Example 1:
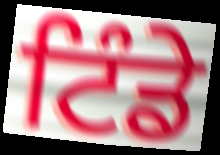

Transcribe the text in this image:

ਟਿੰਡੇ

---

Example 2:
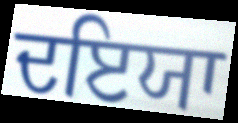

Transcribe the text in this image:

ਦਇਯਾ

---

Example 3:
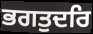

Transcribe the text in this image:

ਭਗਤੁਦਰਿ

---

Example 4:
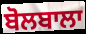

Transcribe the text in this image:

ਬੋਲਬਾਲਾ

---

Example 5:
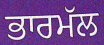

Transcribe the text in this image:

ਭਾਰਮੱਲ